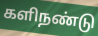
களிநண்டு